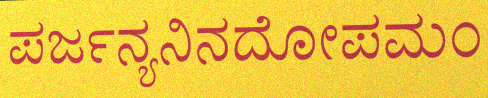
ಪರ್ಜನ್ಯನಿನದೋಪಮಂ